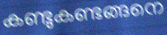
കണ്ടുകണ്ടങ്ങനെ